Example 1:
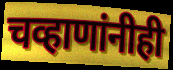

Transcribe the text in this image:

चव्हाणांनीही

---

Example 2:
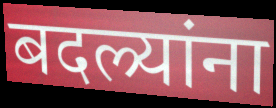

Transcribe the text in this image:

बदल्यांना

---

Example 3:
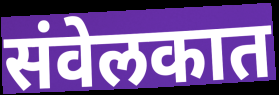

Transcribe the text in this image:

संवेलकात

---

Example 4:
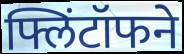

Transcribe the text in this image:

फ्लिंटॉफने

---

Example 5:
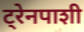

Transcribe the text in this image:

ट्रेनपाशी